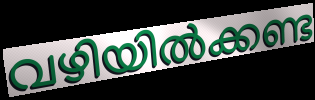
വഴിയിൽക്കണ്ട